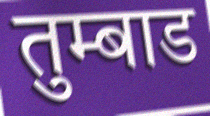
तुम्बाड